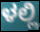
ಳಲ್ಲಿ